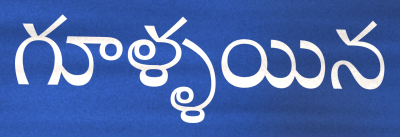
గూళ్ళయిన